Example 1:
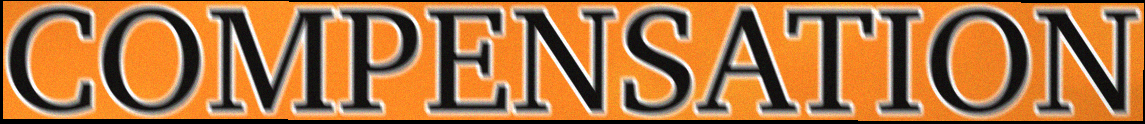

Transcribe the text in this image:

COMPENSATION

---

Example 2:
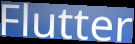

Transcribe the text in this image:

Flutter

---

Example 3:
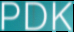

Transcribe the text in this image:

PDK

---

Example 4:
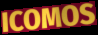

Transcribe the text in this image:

ICOMOS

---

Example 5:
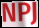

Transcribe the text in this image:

NPJ